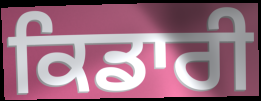
ਕਿਡਾਰੀ